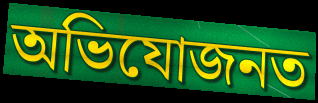
অভিযোজনত